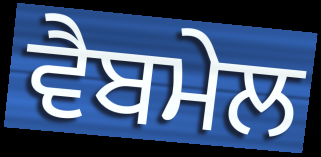
ਵੈਬਮੇਲ